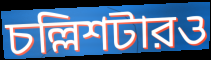
চল্লিশটারও